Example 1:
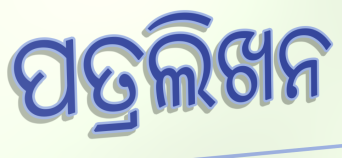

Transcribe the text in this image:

ପତ୍ରଲିଖନ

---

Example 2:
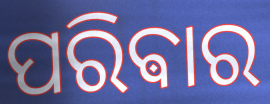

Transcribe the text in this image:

ପରିଵାର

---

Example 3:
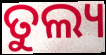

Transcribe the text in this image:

ତୁଲ୍ୟ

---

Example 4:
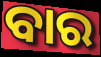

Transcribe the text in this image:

ବାର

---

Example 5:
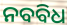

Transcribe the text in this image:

ନବବିଧ